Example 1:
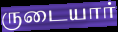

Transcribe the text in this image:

ருடையார்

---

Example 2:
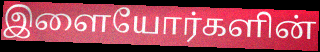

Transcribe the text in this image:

இளையோர்களின்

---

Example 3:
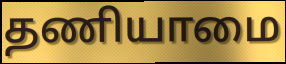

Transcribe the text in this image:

தணியாமை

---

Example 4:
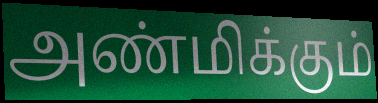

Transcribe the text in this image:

அண்மிக்கும்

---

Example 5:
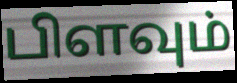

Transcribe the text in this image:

பிளவும்